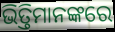
ଭିତ୍ତିମାନଙ୍କରେ